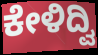
ಕೇಳಿದ್ವಿ